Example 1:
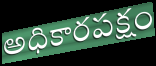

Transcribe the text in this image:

అధికారపక్షం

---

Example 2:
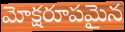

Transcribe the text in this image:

మోక్షరూపమైన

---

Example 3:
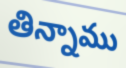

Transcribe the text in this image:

తిన్నాము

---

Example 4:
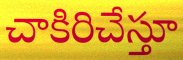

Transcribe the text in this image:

చాకిరిచేస్తూ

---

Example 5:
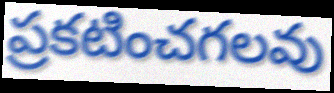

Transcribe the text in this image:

ప్రకటించగలవు